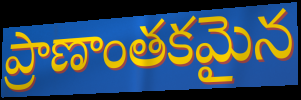
ప్రాణాంతకమైన